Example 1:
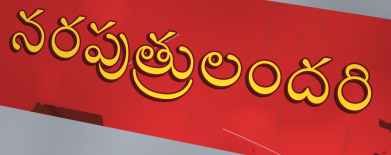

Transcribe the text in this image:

నరపుత్రులందరి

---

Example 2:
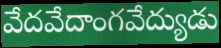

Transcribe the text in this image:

వేదవేదాంగవేద్యుడు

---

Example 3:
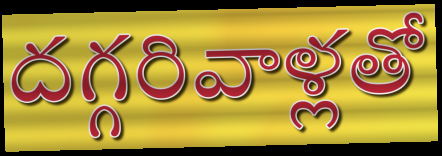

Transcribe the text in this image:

దగ్గరివాళ్లతో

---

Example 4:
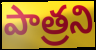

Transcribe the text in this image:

పాత్రని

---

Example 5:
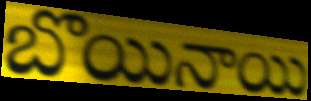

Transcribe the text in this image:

బొయినాయి